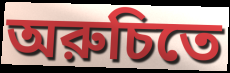
অরুচিতে